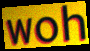
woh